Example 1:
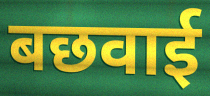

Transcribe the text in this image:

बछवाई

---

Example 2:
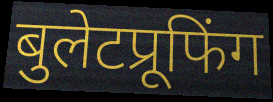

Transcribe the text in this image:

बुलेटप्रूफिंग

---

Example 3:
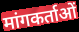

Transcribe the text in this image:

मांगकर्ताओं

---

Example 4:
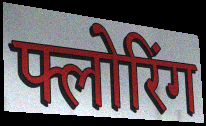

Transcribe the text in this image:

फ्लोरिंग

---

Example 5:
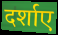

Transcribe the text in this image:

दर्शाए